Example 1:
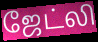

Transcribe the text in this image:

ஜேட்லி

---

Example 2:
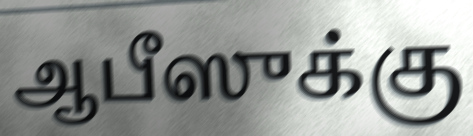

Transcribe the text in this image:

ஆபீஸுக்கு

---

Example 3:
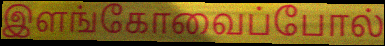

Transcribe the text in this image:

இளங்கோவைப்போல்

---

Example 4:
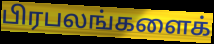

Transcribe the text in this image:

பிரபலங்களைக்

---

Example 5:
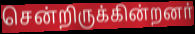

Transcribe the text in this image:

சென்றிருக்கின்றனர்